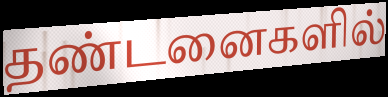
தண்டனைகளில்